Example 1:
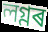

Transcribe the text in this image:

লগ্নৰ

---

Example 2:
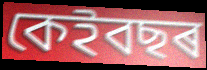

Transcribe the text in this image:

কেইবছৰ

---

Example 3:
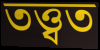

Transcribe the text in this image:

তত্ত্বত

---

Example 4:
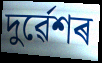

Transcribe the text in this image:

দুৰ্ৱেশৰ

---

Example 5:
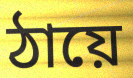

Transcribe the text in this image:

ঠায়ে